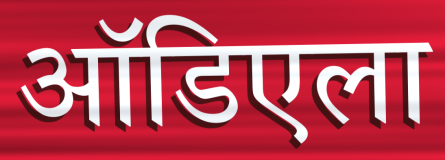
ऑडिएला